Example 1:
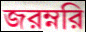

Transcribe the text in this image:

জরম্নরি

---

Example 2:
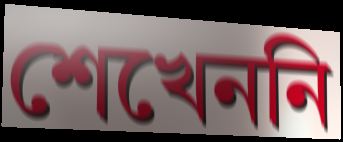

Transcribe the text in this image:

শেখেননি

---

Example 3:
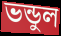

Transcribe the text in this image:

ভন্ডুল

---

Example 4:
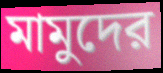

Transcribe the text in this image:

মামুদের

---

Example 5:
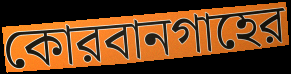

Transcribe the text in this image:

কোরবানগাহের